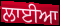
ਲਾਈਆ